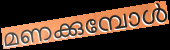
മണക്കുമ്പോൾ